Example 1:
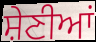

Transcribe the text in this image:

ਸ਼ੇਣੀਆਂ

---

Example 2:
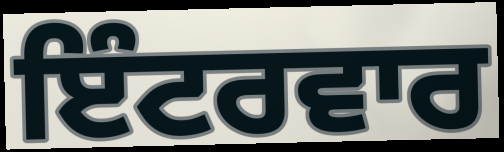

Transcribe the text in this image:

ਇੰਟਰਵਾਰ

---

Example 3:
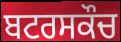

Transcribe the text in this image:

ਬਟਰਸਕੌਚ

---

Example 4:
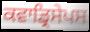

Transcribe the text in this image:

ਕਵਾਡ੍ਰਿਸੇਪਸ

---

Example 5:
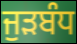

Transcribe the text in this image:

ਜੁੜਬੰਧ